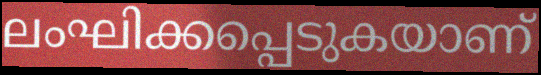
ലംഘിക്കപ്പെടുകയാണ്